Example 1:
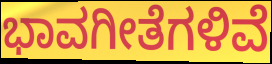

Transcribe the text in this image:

ಭಾವಗೀತೆಗಳಿವೆ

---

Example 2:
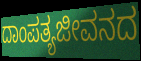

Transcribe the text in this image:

ದಾಂಪತ್ಯಜೀವನದ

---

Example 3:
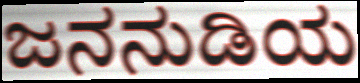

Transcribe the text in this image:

ಜನನುಡಿಯ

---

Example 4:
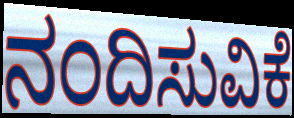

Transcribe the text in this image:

ನಂದಿಸುವಿಕೆ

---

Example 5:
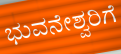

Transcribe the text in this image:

ಭುವನೇಶ್ವರಿಗೆ